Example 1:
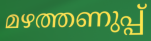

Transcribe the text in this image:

മഴത്തണുപ്പ്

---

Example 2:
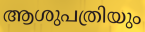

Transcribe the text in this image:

ആശുപത്രിയും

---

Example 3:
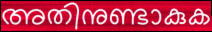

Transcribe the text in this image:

അതിനുണ്ടാകുക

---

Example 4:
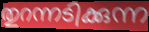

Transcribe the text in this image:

തുറന്നടിക്കുന്ന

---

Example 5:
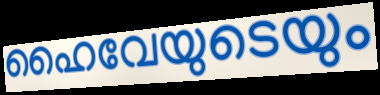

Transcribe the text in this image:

ഹൈവേയുടെയും